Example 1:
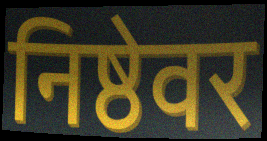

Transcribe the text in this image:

निष्ठेवर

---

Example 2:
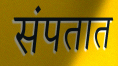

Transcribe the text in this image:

संपतात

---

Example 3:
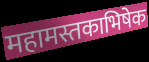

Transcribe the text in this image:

महामस्तकाभिषेक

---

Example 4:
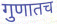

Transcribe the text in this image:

गुणातच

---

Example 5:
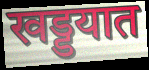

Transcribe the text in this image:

खड्डयात